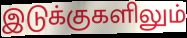
இடுக்குகளிலும்